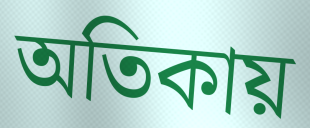
অতিকায়